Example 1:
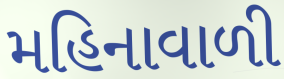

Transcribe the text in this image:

મહિનાવાળી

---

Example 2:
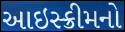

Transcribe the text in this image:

આઇસ્ક્રીમનો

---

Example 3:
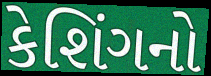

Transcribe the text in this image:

કેશિંગનો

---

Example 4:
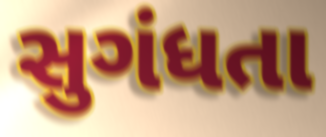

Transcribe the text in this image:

સુગંધતા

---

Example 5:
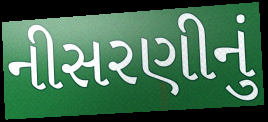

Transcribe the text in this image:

નીસરણીનું